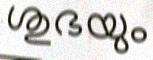
ശുഭയും